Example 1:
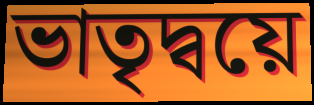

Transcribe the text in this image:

ভাতৃদ্বয়ে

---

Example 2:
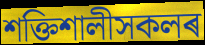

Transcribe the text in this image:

শক্তিশালীসকলৰ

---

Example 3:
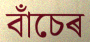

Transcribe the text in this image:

বাঁচেৰ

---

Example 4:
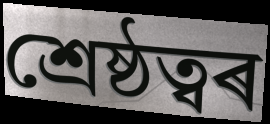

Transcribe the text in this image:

শ্ৰেষ্ঠত্বৰ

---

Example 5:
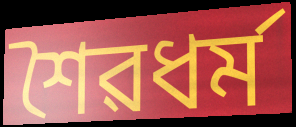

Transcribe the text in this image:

শৈৱধৰ্ম